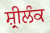
ਸ਼੍ਰੀਲੰਕ